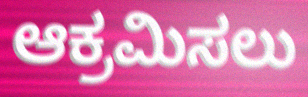
ಆಕ್ರಮಿಸಲು